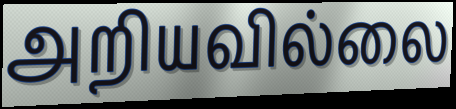
அறியவில்லை